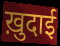
ख़ुदाई